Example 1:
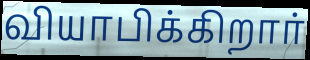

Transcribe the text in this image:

வியாபிக்கிறார்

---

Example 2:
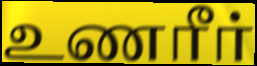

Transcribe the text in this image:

உணரீர்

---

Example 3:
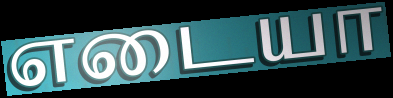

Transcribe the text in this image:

எடையா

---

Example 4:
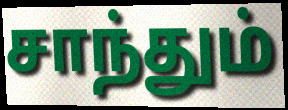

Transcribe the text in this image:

சாந்தும்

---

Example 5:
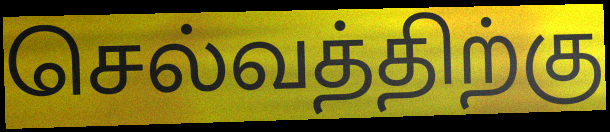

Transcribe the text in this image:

செல்வத்திற்கு